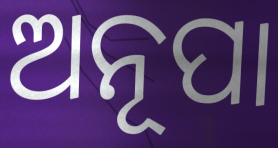
ଅନୂପା